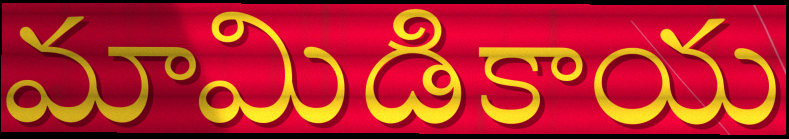
మామిడికాయ